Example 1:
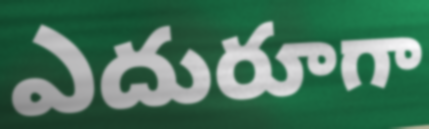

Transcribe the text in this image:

ఎదురూగా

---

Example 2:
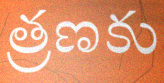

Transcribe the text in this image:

త్రణకు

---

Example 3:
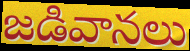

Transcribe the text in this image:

జడివానలు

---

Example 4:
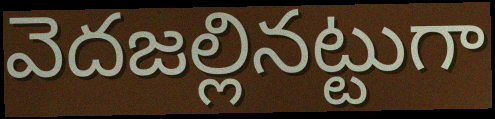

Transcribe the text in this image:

వెదజల్లినట్టుగా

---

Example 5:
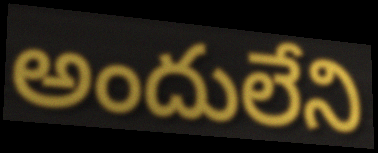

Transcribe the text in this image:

అందులేని